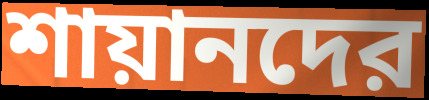
শায়ানদের